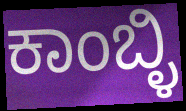
ಕಾಂಬ್ಳಿ